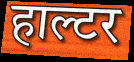
हाल्टर